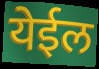
येईल